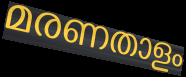
മരണതാളം